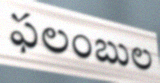
ఫలంబుల